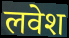
लवेश